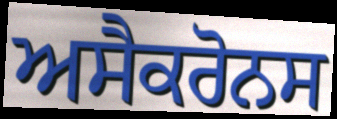
ਅਸੈਕਰੋਨਸ